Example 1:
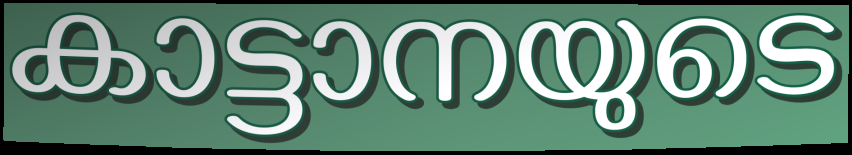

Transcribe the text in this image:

കാട്ടാനയുടെ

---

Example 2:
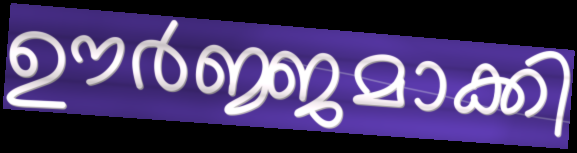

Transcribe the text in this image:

ഊർജ്ജമാക്കി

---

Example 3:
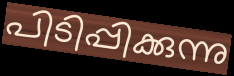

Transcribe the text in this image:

പിടിപ്പിക്കുന്നു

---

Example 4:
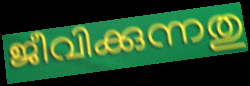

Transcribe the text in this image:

ജീവിക്കുന്നതു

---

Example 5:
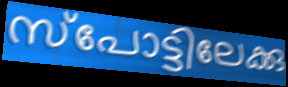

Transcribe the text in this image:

സ്പോട്ടിലേക്കു